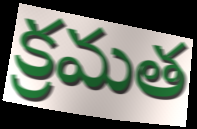
క్రమత